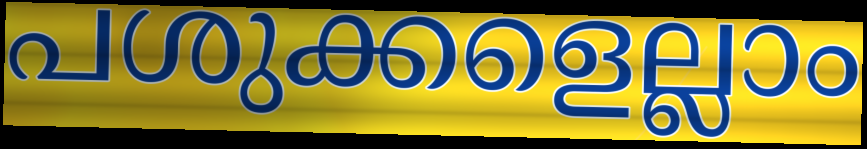
പശുക്കളെല്ലാം